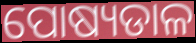
ପୋଷ୍ୟଡାଳ